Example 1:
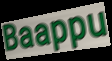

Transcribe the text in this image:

Baappu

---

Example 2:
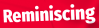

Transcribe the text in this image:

Reminiscing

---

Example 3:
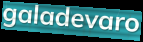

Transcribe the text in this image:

galadevaro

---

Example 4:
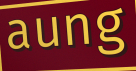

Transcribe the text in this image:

aung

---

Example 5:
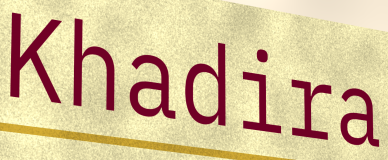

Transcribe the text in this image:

Khadira